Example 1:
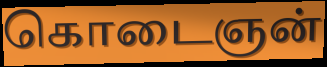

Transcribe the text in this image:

கொடைஞன்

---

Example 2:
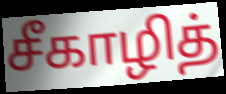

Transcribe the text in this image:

சீகாழித்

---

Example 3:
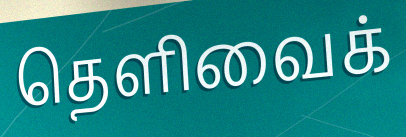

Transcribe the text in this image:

தெளிவைக்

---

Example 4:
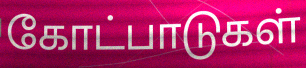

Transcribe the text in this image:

கோட்பாடுகள்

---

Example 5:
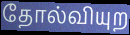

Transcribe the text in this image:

தோல்வியுற